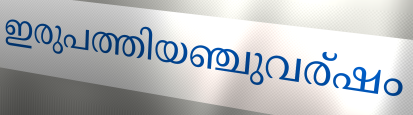
ഇരുപത്തിയഞ്ചുവര്ഷം